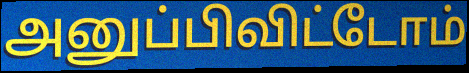
அனுப்பிவிட்டோம்